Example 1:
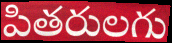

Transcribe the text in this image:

పితరులగు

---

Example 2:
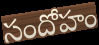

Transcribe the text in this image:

సందోహం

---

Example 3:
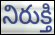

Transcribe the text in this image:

నిరుక్తి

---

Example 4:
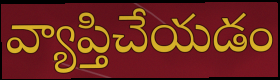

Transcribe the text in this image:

వ్యాప్తిచేయడం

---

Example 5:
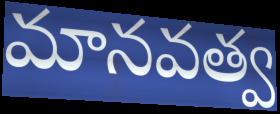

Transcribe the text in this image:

మానవత్వ